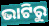
ଭାଟିରୁ